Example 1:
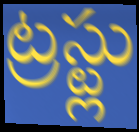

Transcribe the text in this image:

ట్రస్ట్లు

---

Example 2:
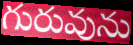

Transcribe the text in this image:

గురువును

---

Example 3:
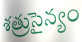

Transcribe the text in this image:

శత్రుసైన్యం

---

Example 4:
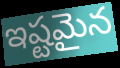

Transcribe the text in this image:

ఇష్టమైన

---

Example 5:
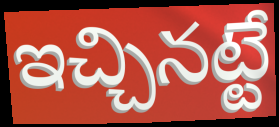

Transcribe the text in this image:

ఇచ్చినట్టే